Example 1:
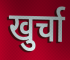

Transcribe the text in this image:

खुर्चा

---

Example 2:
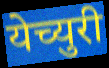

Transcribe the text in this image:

येच्युरी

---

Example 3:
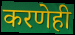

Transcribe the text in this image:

करणेही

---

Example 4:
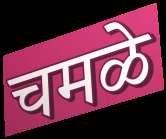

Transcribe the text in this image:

चमळे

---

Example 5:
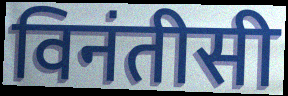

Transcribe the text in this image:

विनंतीसी